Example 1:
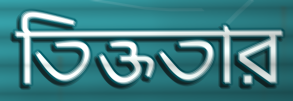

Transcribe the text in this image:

তিক্ততার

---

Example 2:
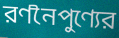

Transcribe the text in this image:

রণনৈপুণ্যের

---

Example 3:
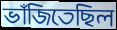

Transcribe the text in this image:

ভাঁজিতেছিল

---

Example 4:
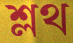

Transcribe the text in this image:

শ্লথ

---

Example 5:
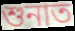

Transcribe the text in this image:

শুনাত